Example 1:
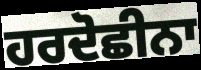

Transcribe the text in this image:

ਹਰਦੋਛੀਨਾ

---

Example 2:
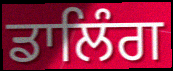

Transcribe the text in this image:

ਡਾਲਿੰਗ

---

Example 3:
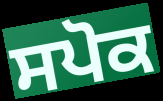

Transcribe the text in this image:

ਸਪੋਕ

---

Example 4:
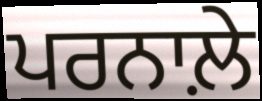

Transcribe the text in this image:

ਪਰਨਾਲ਼ੇ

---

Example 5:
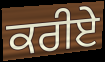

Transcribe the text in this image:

ਕਰੀਏੇ